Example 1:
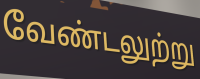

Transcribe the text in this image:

வேண்டலுற்று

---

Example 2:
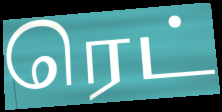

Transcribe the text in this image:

ரெட்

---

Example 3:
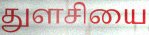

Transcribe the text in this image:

துளசியை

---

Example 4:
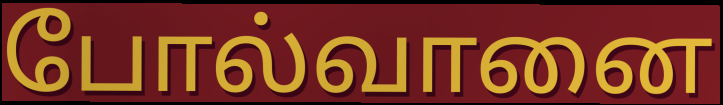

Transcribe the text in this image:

போல்வானை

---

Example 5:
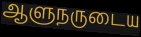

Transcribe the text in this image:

ஆளுநருடைய